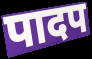
पादप